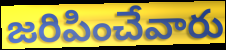
జరిపించేవారు